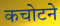
कचोटने